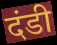
दंडी